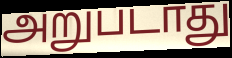
அறுபடாது